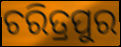
ଚରିତ୍ରପୁର